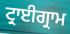
ਟ੍ਰਾਈਗ੍ਰਾਮ